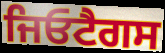
ਜਿਓਟੈਗਸ